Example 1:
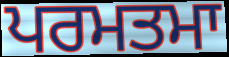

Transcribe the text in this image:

ਪਰਮਤਮਾ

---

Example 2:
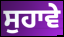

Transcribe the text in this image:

ਸੁਹਾਵੇ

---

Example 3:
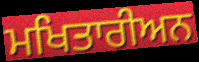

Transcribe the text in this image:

ਮਖਿਤਾਰੀਅਨ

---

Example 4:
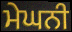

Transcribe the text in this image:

ਮੇਘਨੀ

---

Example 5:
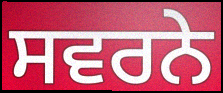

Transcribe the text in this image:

ਸਵਰਨੇ